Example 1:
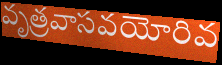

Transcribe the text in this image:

వృత్రవాసవయోరివ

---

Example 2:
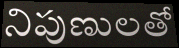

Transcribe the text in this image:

నిపుణులతో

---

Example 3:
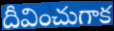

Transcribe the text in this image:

దీవించుగాక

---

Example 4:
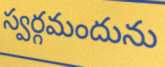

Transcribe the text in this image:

స్వర్గమందును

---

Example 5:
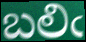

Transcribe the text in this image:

బలిఁ